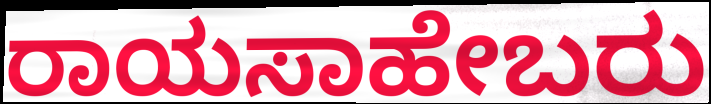
ರಾಯಸಾಹೇಬರು